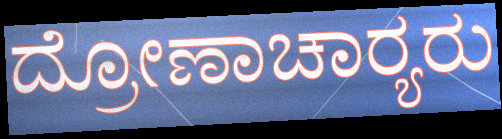
ದ್ರೋಣಾಚಾರ‍್ಯರು